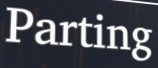
Parting